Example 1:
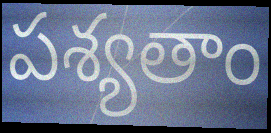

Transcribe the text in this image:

పశ్యతాం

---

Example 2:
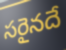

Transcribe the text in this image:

సరైనదే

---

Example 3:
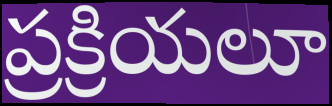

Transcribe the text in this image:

ప్రక్రియలూ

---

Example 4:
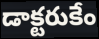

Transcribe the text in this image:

డాక్టరుకేం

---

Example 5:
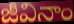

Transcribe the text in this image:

జీవినాం